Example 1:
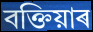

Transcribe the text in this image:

বক্তিয়াৰ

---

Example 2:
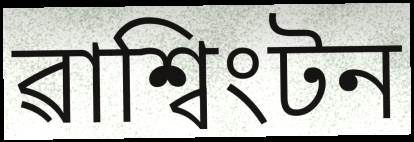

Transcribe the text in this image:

ৱাশ্বিংটন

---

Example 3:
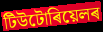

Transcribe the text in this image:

টিউটোৰিয়েলৰ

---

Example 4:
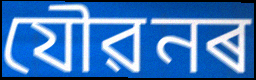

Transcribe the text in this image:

যৌৱনৰ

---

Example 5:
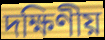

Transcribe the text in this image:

দক্ষিণীয়